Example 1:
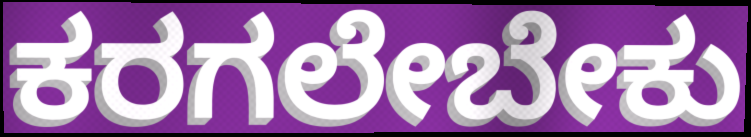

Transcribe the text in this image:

ಕರಗಲೇಬೇಕು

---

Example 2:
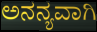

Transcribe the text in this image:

ಅನನ್ಯವಾಗಿ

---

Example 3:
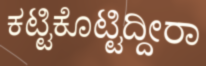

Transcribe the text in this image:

ಕಟ್ಟಿಕೊಟ್ಟಿದ್ದೀರಾ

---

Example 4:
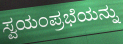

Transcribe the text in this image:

ಸ್ವಯಂಪ್ರಭೆಯನ್ನು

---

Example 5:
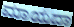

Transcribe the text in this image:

ಮಾಯದಾ